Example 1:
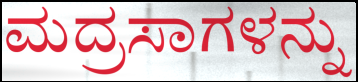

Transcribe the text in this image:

ಮದ್ರಸಾಗಳನ್ನು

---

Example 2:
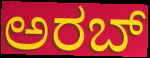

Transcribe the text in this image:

ಅರಬ್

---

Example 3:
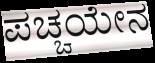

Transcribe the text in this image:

ಪಚ್ಚಯೇನ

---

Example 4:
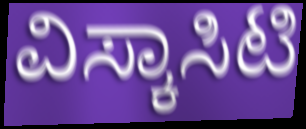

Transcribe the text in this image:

ವಿಸ್ಕಾಸಿಟಿ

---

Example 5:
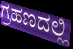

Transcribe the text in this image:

ಗ್ರಹಣದಲ್ಲಿ